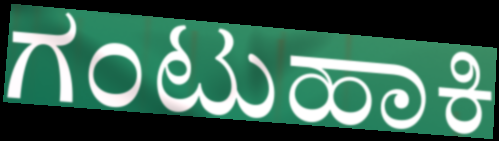
ಗಂಟುಹಾಕಿ